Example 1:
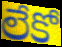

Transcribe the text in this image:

లేకో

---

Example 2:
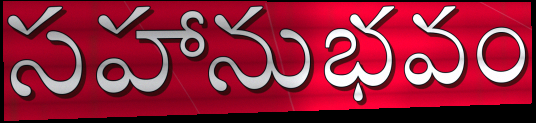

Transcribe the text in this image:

సహానుభవం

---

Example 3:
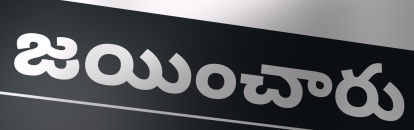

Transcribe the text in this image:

జయించారు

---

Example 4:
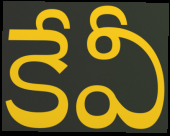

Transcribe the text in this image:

కేవీ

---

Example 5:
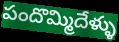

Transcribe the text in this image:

పందొమ్మిదేళ్ళు